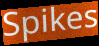
Spikes